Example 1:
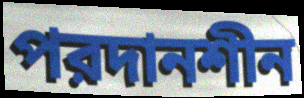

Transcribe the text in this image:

পরদানশীন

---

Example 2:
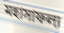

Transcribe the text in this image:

মহাসাফল্য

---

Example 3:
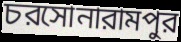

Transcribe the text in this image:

চরসোনারামপুর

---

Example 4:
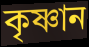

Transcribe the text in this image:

কৃষ্ণান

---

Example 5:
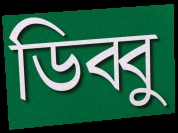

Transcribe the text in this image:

ডিব্বু